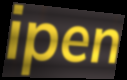
ipen